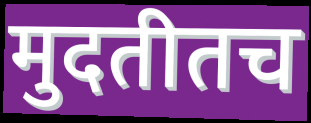
मुदतीतच